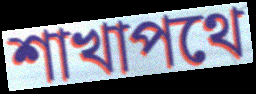
শাখাপথে